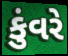
કુંવરે